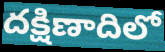
దక్షిణాదిలో